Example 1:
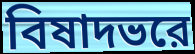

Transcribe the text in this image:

বিষাদভরে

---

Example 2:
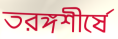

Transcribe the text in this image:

তরঙ্গশীর্ষে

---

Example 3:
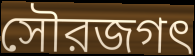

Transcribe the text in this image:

সৌরজগৎ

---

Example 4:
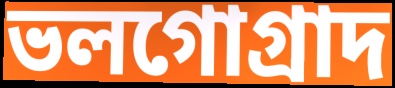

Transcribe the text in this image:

ভলগোগ্রাদ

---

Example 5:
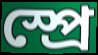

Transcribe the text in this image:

স্প্রে